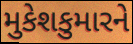
મુકેશકુમારને